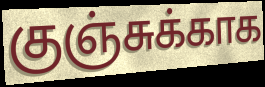
குஞ்சுக்காக